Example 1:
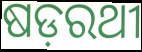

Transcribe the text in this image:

ଷଡ଼ରଥୀ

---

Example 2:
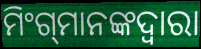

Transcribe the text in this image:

ମିଂଗ୍‍ମାନଙ୍କଦ୍ୱାରା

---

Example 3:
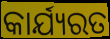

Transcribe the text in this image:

କାର୍ଯ୍ୟରତ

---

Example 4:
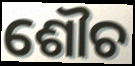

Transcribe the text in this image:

ଶୌଚ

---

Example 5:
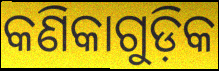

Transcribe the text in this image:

କଣିକାଗୁଡ଼ିକ